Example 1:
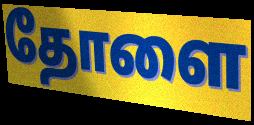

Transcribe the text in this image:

தோளை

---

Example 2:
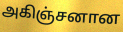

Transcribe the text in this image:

அகிஞ்சனான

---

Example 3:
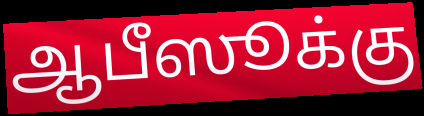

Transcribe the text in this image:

ஆபீஸூக்கு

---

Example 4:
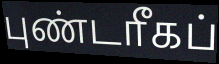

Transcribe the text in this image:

புண்டரீகப்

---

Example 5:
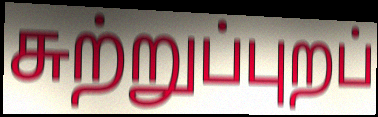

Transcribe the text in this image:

சுற்றுப்புறப்